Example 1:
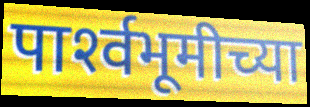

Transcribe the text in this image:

पार्श्वभूमीच्या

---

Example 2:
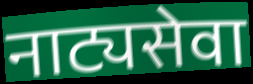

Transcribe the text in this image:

नाट्यसेवा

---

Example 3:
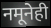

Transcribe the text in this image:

नमूनेही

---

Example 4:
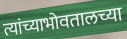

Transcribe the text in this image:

त्यांच्याभोवतालच्या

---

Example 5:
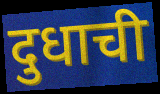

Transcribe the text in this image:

दुधाची